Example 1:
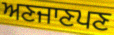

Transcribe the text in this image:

ਅਣਜਾਣਪਣ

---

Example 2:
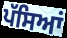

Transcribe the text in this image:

ਪੱਸਿਆਂ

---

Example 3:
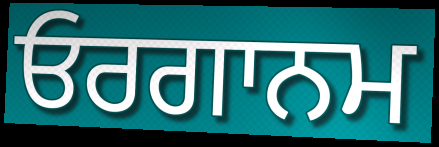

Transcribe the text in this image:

ਓਰਗਾਨਮ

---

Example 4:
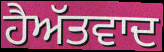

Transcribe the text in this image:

ਹੈਅੱਤਵਾਦ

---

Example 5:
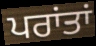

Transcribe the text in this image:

ਪਰਾਂਤਾਂ